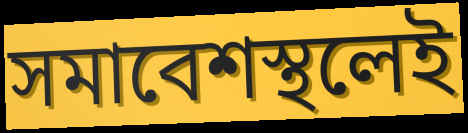
সমাবেশস্থলেই